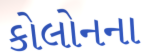
કોલોનના